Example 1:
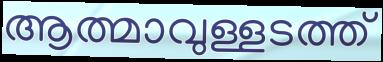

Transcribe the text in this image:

ആത്മാവുള്ളടത്ത്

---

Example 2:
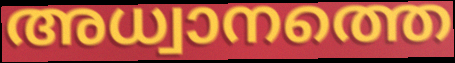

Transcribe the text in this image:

അധ്വാനത്തെ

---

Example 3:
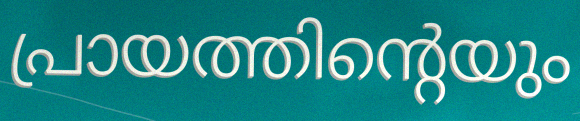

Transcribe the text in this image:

പ്രായത്തിന്റെയും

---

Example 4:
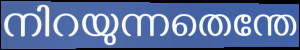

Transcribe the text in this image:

നിറയുന്നതെന്തേ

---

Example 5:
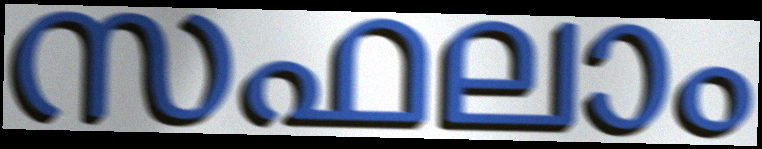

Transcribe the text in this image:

സഫലാം